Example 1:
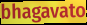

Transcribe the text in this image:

bhagavato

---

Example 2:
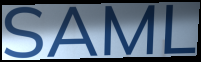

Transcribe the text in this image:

SAML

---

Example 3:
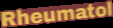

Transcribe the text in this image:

Rheumatol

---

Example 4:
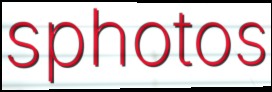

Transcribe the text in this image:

sphotos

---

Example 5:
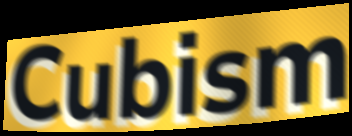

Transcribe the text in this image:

Cubism